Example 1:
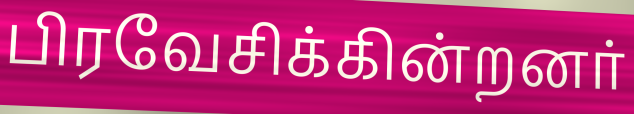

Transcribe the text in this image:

பிரவேசிக்கின்றனர்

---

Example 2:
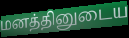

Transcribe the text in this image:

மனத்தினுடைய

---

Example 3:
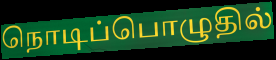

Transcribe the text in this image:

நொடிப்பொழுதில்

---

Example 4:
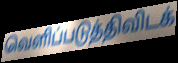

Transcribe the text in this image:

வெளிப்படுத்திவிடக்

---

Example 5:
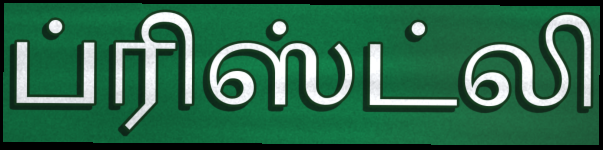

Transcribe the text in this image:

ப்ரிஸ்ட்லி